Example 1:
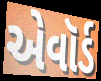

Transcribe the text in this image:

એવૉર્ડ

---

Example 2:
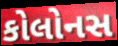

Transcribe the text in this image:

કોલોનસ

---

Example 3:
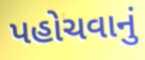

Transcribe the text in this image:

પહોચવાનું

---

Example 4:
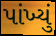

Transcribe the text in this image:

પાંખ્યું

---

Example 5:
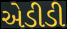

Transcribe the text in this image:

એડીડી